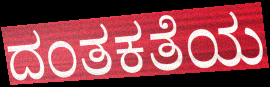
ದಂತಕತೆಯ